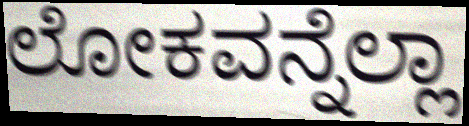
ಲೋಕವನ್ನೆಲ್ಲಾ